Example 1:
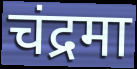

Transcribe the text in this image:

चंद्रमा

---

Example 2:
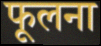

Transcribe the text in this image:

फूलना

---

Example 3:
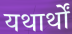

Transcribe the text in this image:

यथार्थों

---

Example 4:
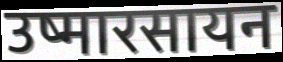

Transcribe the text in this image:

उष्मारसायन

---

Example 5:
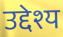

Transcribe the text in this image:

उद्देश्य